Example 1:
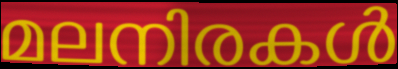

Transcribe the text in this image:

മലനിരകൾ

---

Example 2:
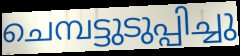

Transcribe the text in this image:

ചെമ്പട്ടുടുപ്പിച്ചു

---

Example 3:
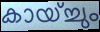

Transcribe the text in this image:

കായ്ച്ചും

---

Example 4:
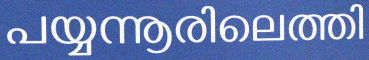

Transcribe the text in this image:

പയ്യന്നൂരിലെത്തി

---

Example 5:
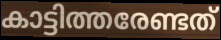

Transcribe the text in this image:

കാട്ടിത്തരേണ്ടത്